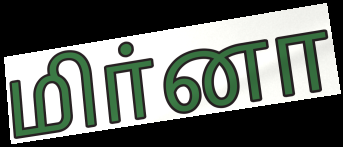
மிர்னா